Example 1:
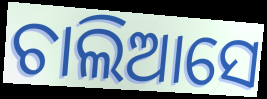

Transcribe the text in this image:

ଚାଲିଆସେ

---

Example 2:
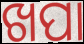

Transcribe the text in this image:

ଖପା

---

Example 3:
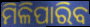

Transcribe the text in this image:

ମିଳିପାରିବ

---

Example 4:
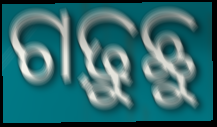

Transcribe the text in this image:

ଗଢ଼ୁଛୁ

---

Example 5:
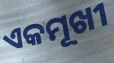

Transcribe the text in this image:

ଏକମୂଖୀ